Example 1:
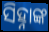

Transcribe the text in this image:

ସିହ୍ନାଙ୍କ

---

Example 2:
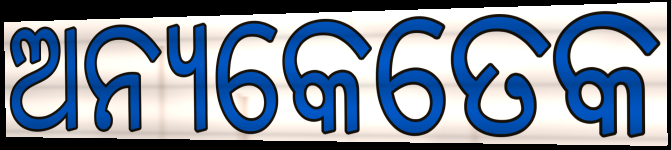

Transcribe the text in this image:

ଅନ୍ୟକେତେକ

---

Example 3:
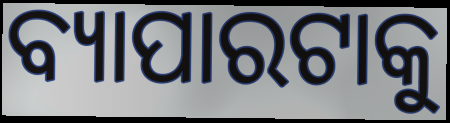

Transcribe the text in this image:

ବ୍ୟାପାରଟାକୁ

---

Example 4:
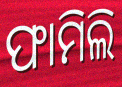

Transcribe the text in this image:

ଫାମିଲି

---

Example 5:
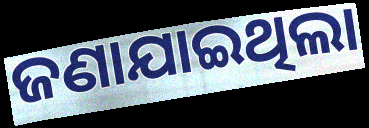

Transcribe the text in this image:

ଜଣାଯାଇଥିଲା